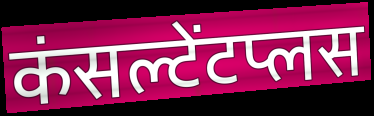
कंसल्टेंटप्लस